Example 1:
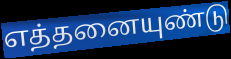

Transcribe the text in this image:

எத்தனையுண்டு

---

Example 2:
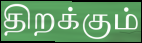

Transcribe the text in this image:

திறக்கும்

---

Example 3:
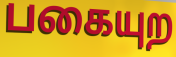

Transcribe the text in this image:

பகையுற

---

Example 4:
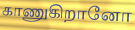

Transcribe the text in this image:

காணுகிறானோ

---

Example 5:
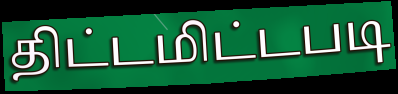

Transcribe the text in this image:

திட்டமிட்டபடி